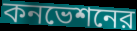
কনভেশনের